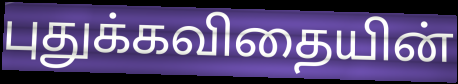
புதுக்கவிதையின்